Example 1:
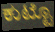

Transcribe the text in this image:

ಕುಟ್ಟೊ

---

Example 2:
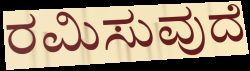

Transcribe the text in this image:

ರಮಿಸುವುದೆ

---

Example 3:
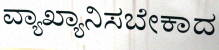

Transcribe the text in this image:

ವ್ಯಾಖ್ಯಾನಿಸಬೇಕಾದ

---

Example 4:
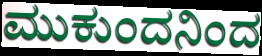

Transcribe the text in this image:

ಮುಕುಂದನಿಂದ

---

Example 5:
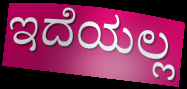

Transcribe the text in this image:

ಇದೆಯಲ್ಲ